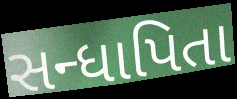
સન્ધાપિતા